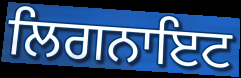
ਲਿਗਨਾਇਟ